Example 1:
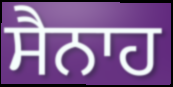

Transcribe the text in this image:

ਸੈਨਾਹ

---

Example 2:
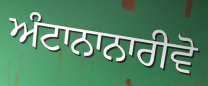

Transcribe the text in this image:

ਅੰਟਾਨਾਨਾਰੀਵੋ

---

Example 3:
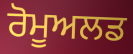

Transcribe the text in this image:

ਰੋਮੂਅਲਡ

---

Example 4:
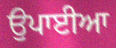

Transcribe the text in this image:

ਉਪਾਈਆ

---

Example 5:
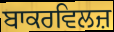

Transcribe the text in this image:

ਬਾਕਰਵਿਲਜ਼